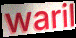
waril